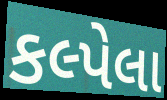
કલ્પેલા